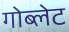
गोब्लेट